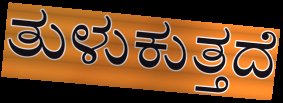
ತುಳುಕುತ್ತದೆ